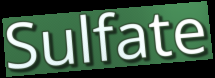
Sulfate